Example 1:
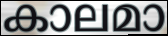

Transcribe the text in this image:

കാലമാ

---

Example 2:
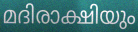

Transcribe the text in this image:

മദിരാക്ഷിയും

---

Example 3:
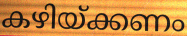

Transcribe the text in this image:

കഴിയ്ക്കണം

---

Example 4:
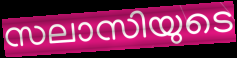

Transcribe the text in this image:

സലാസിയുടെ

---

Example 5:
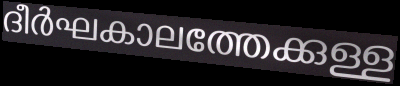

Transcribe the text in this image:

ദീർഘകാലത്തേക്കുള്ള